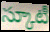
స్కూటీ